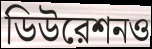
ডিউরেশনও